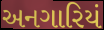
અનગારિયં